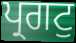
ਪ੍ਰਗਟੁ